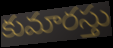
కుమారస్తు